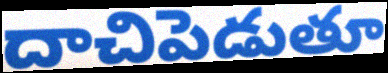
దాచిపెడుతూ